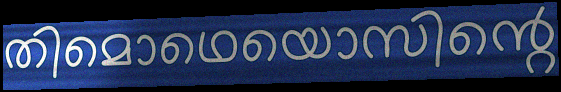
തിമൊഥെയൊസിന്റെ